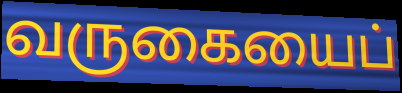
வருகையைப்